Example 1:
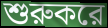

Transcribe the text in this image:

শুরুকরে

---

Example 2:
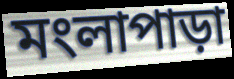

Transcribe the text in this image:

মংলাপাড়া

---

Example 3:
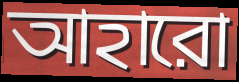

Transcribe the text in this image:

আহারো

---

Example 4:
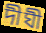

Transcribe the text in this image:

দীঘী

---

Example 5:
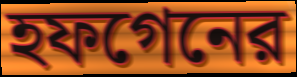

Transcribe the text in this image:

হফগেনের